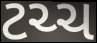
ટચ્ચ